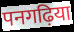
पनगढ़िया